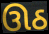
ઊઠ